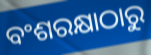
ବଂଶରକ୍ଷାଠାରୁ